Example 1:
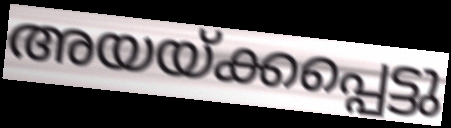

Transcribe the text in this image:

അയയ്ക്കപ്പെട്ടു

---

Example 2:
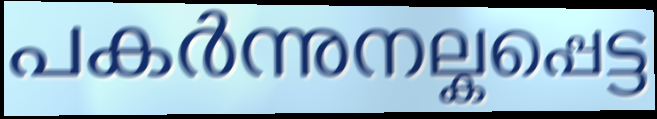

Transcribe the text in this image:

പകർന്നുനല്കപ്പെട്ട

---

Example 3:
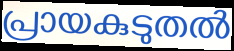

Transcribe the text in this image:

പ്രായകുടുതൽ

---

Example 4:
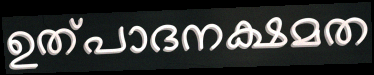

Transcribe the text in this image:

ഉത്പാദനക്ഷമത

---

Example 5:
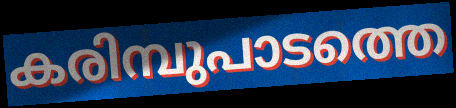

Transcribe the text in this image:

കരിമ്പുപാടത്തെ